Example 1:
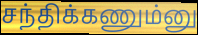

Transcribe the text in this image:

சந்திக்கணும்னு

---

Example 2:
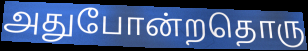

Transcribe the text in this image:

அதுபோன்றதொரு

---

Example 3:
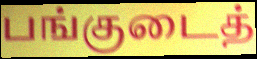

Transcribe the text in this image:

பங்குடைத்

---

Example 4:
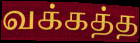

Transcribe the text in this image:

வக்கத்த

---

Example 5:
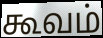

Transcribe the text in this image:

கூவம்